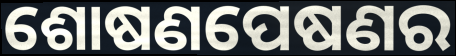
ଶୋଷଣପେଷଣର